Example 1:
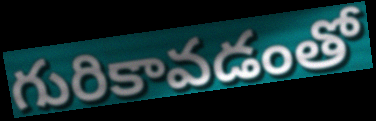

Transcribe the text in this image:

గురికావడంతో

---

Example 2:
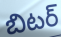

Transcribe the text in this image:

బిటర్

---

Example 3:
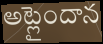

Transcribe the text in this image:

అట్లైందాన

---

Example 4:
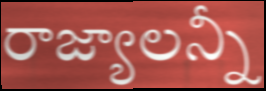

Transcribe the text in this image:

రాజ్యాలన్నీ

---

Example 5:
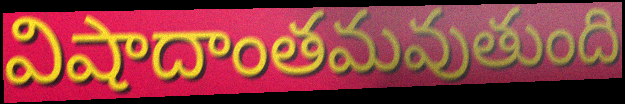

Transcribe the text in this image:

విషాదాంతమవుతుంది